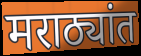
मराठ्यांत